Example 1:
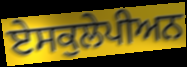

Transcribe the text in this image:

ਏਸਕੁਲੇਪੀਅਨ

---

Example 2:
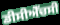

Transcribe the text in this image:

ਡੀਸੀਐੱਚਸੀ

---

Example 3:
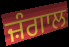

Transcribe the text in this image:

ਜ਼ੰਗਾਲ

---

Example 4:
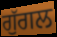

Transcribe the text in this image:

ਗੁੱਗਲ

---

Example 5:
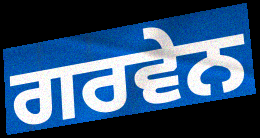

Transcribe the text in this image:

ਗਰਵੇਨ